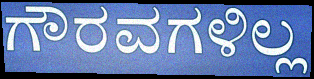
ಗೌರವಗಳಿಲ್ಲ